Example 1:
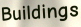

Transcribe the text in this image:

Buildings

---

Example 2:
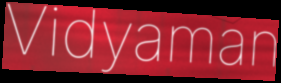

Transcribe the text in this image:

Vidyaman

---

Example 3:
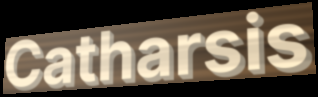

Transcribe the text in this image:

Catharsis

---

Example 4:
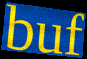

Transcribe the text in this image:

buf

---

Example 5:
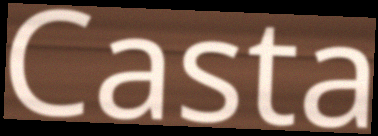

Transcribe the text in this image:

Casta